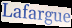
Lafargue